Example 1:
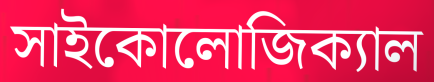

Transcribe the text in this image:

সাইকোলোজিক্যাল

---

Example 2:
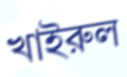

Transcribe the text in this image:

খাইরুল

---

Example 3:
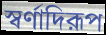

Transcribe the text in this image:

স্বর্ণাদিরূপ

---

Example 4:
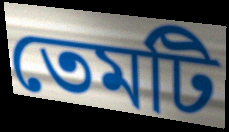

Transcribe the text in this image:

তেমটি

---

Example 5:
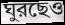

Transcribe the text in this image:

ঘুরছেও